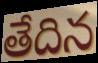
తేదిన